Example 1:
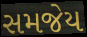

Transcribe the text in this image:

સમજેય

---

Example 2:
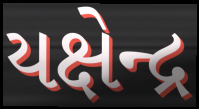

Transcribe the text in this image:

યક્ષેન્દ્ર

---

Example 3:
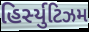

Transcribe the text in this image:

હિર્સ્યુટિઝમ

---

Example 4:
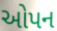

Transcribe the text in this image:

ઓપન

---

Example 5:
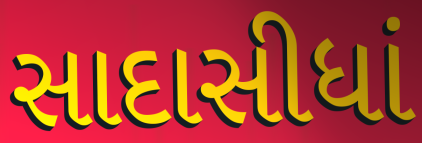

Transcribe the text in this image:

સાદાસીધાં